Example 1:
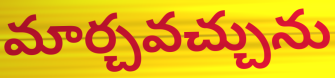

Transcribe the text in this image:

మార్చవచ్చును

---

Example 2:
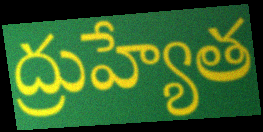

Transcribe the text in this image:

ద్రుహ్యేత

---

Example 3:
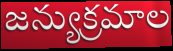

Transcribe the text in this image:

జన్యుక్రమాల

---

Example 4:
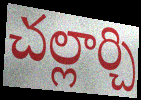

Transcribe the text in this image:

చల్లార్చి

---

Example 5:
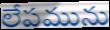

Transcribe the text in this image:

లేపమును